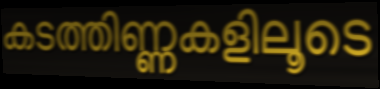
കടത്തിണ്ണകളിലൂടെ